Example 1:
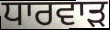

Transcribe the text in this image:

ਧਾਰਵਾੜ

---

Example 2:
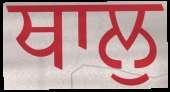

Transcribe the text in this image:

ਥਾਲੁ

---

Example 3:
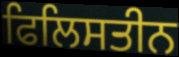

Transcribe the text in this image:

ਫਿਲਿਸਤੀਨ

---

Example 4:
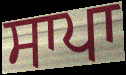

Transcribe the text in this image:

ਸਾਪਾ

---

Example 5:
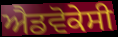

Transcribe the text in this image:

ਐਡਵੋਕੇਸੀ